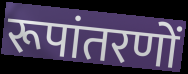
रूपांतरणों